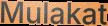
Mulakat